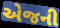
એજની